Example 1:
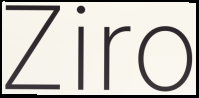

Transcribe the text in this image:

Ziro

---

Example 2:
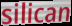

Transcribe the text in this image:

silican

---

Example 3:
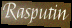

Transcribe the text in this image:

Rasputin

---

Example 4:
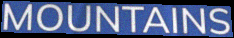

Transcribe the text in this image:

MOUNTAINS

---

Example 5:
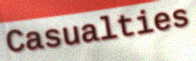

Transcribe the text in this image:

Casualties